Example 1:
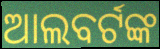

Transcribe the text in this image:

ଆଲବର୍ଟଙ୍କ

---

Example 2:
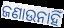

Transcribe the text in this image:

ଜଣାଉନାହିଁ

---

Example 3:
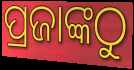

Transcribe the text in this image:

ପ୍ରଜାଙ୍କଠୁ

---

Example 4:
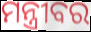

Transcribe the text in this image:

ମନ୍ତ୍ରୀବର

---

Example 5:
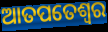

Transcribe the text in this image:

ଆତପତେଶ୍ୱର